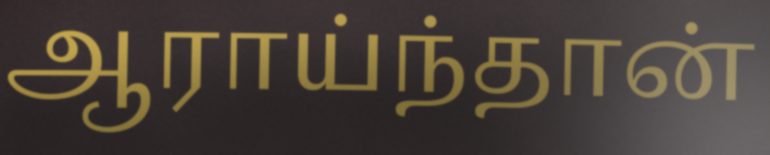
ஆராய்ந்தான்